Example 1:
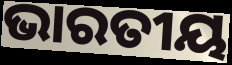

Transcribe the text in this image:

ଭାରତୀୟ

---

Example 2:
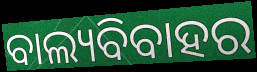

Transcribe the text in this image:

ବାଲ୍ୟବିବାହର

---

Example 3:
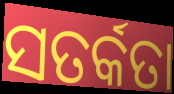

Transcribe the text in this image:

ସତର୍କତା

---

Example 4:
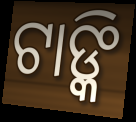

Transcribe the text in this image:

ଟାଙ୍କି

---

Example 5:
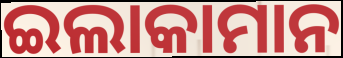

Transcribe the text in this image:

ଇଲାକାମାନ